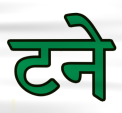
टने